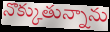
నొక్కుతున్నాను